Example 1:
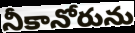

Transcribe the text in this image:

నీకానోరును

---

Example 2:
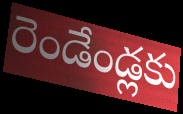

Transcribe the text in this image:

రెండేండ్లకు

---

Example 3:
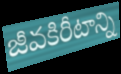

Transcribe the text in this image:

జీవకిరీటాన్ని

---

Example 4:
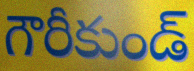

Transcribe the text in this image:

గౌరీకుండ్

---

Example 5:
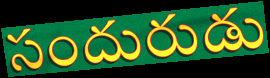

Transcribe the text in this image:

సందురుడు